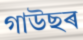
গাউছৰ